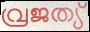
വ്രജത്യ്